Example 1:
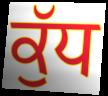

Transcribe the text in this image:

ਕੁੱਧ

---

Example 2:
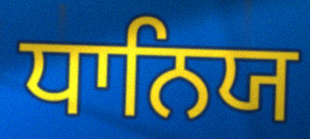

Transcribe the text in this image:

ਧਾਨਿਯ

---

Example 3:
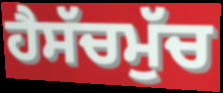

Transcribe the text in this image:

ਹੈਸੱਚਮੁੱਚ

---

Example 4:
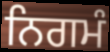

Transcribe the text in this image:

ਨਿਗਮੰ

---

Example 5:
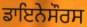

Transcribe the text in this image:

ਡਾਇਨੇਸੌਰਸ